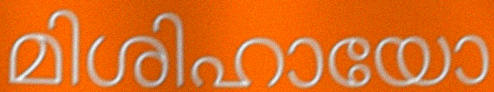
മിശിഹായോ